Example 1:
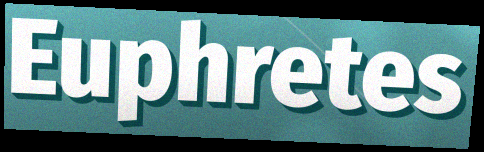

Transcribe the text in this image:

Euphretes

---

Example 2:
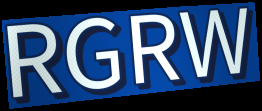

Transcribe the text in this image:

RGRW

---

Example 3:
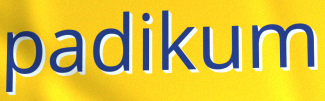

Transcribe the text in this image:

padikum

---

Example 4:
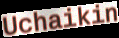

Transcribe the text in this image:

Uchaikin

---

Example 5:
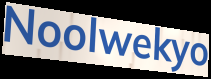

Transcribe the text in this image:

Noolwekyo